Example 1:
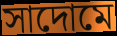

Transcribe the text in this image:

সাদোমে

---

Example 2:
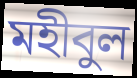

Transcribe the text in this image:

মহীবুল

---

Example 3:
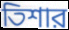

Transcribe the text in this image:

তিশার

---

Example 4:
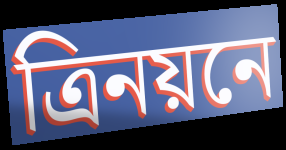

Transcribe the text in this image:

ত্রিনয়নে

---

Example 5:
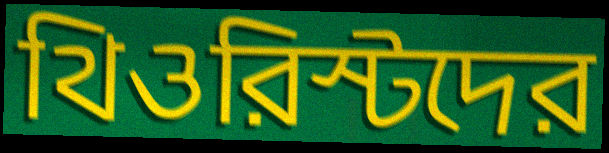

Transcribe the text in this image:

থিওরিস্টদের